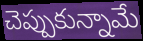
చెప్పుకున్నామే